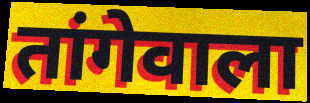
तांगेवाला